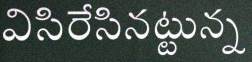
విసిరేసినట్టున్న